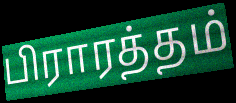
பிராரத்தம்